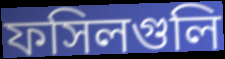
ফসিলগুলি